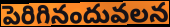
పెరిగినందువలన